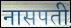
नासपती